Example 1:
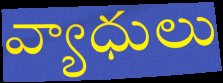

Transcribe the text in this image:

వ్యాధులు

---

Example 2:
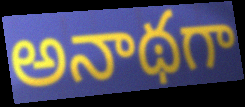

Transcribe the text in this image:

అనాథగా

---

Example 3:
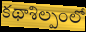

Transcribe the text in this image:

కథాశిల్పంలో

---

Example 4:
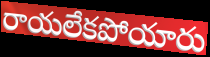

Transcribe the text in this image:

రాయలేకపోయారు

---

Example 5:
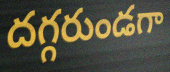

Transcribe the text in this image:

దగ్గరుండగా